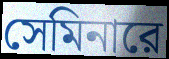
সেমিনারে